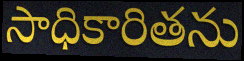
సాధికారితను